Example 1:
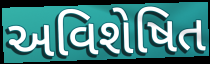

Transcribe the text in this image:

અવિશેષિત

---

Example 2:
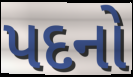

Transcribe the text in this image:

પદનો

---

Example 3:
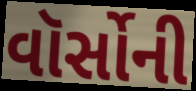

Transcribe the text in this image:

વૉર્સોની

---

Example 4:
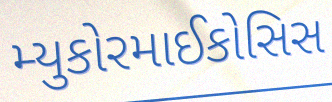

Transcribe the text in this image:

મ્યુકોરમાઈકોસિસ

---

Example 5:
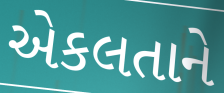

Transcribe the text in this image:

એકલતાને